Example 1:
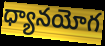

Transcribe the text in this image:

ధ్యానయోగ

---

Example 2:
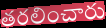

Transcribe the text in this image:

తరలించారు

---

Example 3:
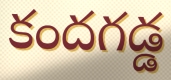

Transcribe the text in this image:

కందగడ్డ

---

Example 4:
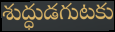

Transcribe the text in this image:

శుద్ధుడగుటకు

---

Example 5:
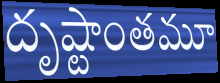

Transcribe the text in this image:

దృష్టాంతమూ